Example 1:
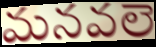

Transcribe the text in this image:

మనవలె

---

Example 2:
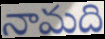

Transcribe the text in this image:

నామది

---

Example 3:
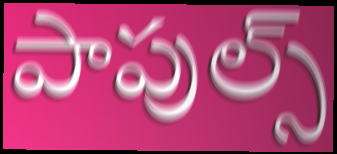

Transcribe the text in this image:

పాపుల్స్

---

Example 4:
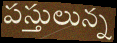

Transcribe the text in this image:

పస్తులున్న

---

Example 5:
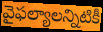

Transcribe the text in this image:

వైఫల్యాలన్నిటికీ